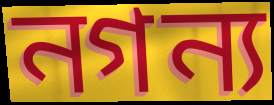
নগন্য